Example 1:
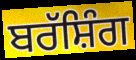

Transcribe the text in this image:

ਬਰੱਸ਼ਿੰਗ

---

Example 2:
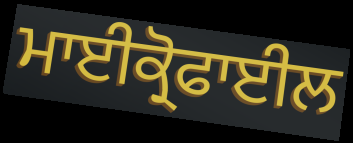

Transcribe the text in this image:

ਮਾਈਕ੍ਰੋਫਾਈਲ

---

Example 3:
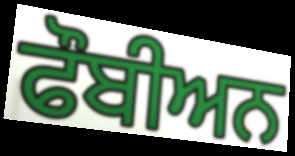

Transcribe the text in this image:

ਫੌਬੀਅਨ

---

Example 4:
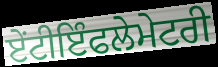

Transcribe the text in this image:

ਏੰਟੀਇੰਫਲੇਮੇਟਰੀ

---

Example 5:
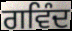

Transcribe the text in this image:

ਗਵਿੰਦ